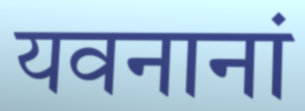
यवनानां